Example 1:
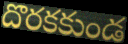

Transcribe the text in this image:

దొరకకుండ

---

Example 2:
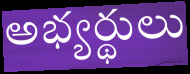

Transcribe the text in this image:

అభ్యర్థులు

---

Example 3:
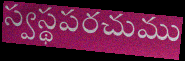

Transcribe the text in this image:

స్వస్థపరచుము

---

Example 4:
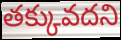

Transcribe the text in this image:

తక్కువదని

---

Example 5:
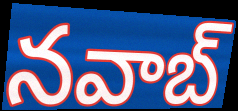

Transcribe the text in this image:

నవాబ్